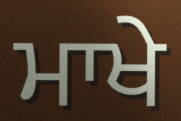
ਮਾਖੇ